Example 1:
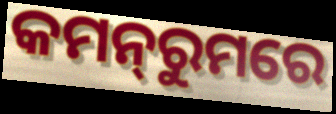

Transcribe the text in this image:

କମନ୍‌ରୁମରେ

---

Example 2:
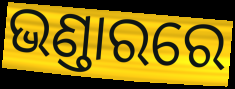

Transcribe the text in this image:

ଭଣ୍ଡାରରେ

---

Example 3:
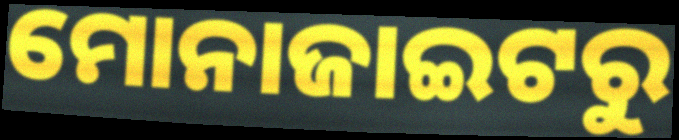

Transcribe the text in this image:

ମୋନାଜାଇଟରୁ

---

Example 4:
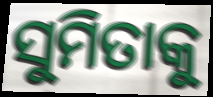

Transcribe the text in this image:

ସୁମିତାକୁ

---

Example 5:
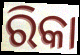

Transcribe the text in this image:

ରିକା